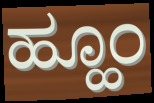
ಹ್ಹೂಂ